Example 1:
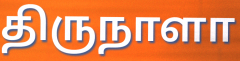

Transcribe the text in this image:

திருநாளா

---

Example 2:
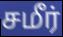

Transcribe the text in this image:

சமீர்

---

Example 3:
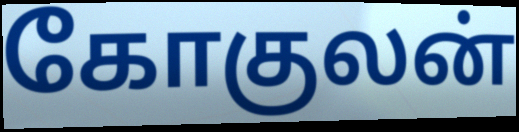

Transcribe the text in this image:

கோகுலன்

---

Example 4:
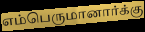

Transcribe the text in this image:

எம்பெருமானார்க்கு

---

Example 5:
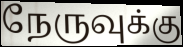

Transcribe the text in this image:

நேருவுக்கு